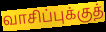
வாசிப்புக்குத்